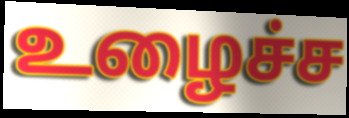
உழைச்ச